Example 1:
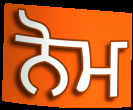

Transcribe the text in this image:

ਨੋਮ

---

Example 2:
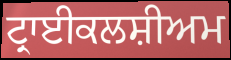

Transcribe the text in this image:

ਟ੍ਰਾਈਕਲਸ਼ੀਅਮ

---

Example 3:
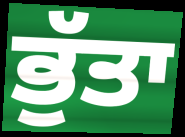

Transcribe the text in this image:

ਭੁੱਤਾ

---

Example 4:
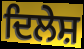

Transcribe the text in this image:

ਦਿਲੇਸ਼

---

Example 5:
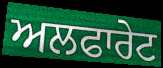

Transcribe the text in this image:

ਅਲਫਾਰੇਟ